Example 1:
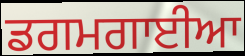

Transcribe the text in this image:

ਡਗਮਗਾਈਆ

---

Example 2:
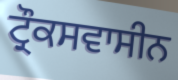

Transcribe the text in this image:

ਟ੍ਰੌਕਸਵਾਸੀਨ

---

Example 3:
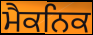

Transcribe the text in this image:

ਮੈਕਨਿਕ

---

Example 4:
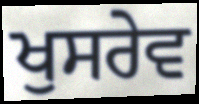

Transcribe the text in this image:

ਖੁਸਰੇਵ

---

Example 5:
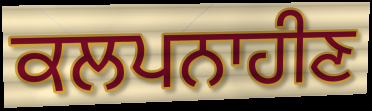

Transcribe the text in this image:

ਕਲਪਨਾਹੀਣ